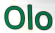
Olo